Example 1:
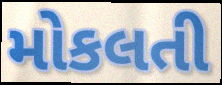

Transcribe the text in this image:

મોકલતી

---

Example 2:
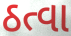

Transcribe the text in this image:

ઠત્વા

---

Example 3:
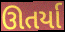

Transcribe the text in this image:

ઊતર્યા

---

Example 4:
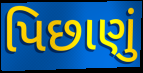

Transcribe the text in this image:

પિછાણું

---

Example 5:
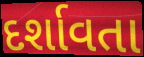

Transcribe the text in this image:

દર્શાવતા